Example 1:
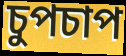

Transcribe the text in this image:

চুপচাপ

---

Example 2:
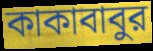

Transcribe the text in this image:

কাকাবাবুর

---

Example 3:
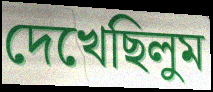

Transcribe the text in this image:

দেখেছিলুম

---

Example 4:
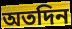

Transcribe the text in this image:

অতদিন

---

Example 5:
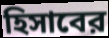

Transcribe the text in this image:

হিসাবের